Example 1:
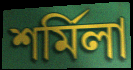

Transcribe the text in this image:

শর্মিলা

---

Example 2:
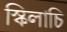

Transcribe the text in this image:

স্কিলাচি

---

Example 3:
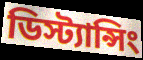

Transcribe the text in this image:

ডিস্ট্যান্সিং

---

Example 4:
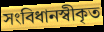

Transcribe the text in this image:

সংবিধানস্বীকৃত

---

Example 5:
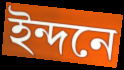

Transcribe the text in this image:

ইন্দনে